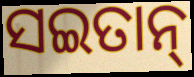
ସଇତାନ୍